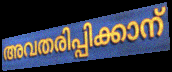
അവതരിപ്പിക്കാന്